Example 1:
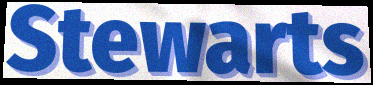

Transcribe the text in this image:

Stewarts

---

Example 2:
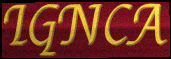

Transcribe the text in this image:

IGNCA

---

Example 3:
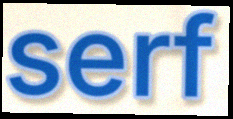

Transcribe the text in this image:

serf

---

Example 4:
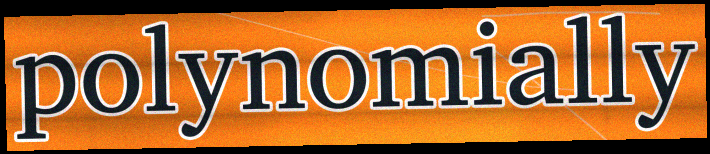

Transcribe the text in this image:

polynomially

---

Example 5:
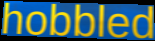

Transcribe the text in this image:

hobbled